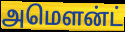
அமௌன்ட்